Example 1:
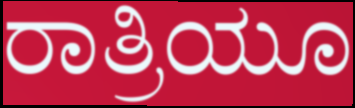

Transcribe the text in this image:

ರಾತ್ರಿಯೂ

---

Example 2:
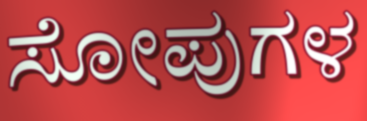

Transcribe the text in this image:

ಸೋಪುಗಳ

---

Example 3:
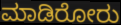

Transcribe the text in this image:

ಮಾಡಿರೋರು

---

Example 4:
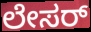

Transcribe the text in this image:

ಲೇಸರ್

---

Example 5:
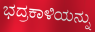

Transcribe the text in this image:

ಭದ್ರಕಾಳಿಯನ್ನು